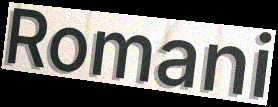
Romani